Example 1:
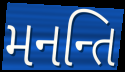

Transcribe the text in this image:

મનન્તિ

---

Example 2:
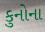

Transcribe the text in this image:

કુનોના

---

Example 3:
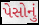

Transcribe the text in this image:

પેસોનું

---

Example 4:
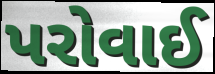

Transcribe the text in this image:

પરોવાઈ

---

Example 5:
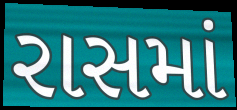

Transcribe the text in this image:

રાસમાં